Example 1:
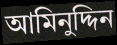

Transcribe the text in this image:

আমিনুদ্দিন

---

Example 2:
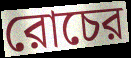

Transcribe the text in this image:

রোচের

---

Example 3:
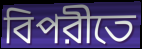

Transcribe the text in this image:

বিপরীতে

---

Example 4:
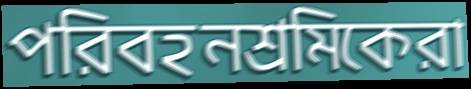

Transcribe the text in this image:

পরিবহনশ্রমিকেরা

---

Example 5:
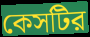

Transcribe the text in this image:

কেসটির